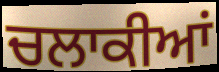
ਚਲਾਕੀਆਂ